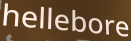
hellebore